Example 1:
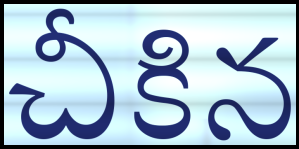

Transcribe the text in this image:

చీకిన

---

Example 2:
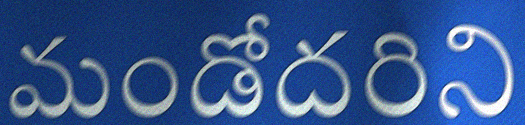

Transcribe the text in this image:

మండోదరిని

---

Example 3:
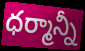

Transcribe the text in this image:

ధర్మాన్నీ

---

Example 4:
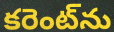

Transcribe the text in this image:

కరెంట్‌ను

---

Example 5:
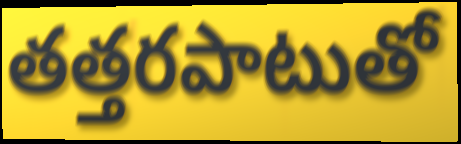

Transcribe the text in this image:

తత్తరపాటుతో